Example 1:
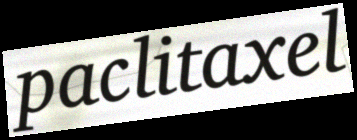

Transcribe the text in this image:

paclitaxel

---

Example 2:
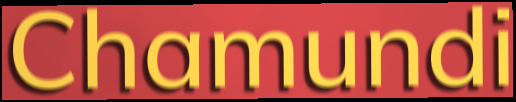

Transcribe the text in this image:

Chamundi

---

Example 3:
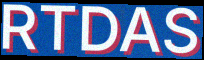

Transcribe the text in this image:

RTDAS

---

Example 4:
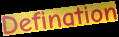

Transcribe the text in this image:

Defination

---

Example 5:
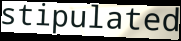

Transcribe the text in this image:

stipulated